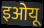
इओयू